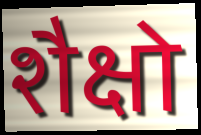
शैक्षो